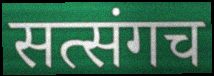
सत्संगच